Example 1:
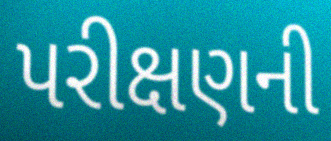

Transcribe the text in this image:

પરીક્ષણની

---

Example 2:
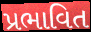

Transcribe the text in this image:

પ્રભાવિત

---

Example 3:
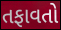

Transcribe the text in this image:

તફાવતો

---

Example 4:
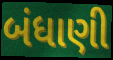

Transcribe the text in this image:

બંધાણી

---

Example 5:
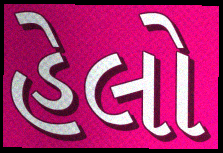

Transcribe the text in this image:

હેલો